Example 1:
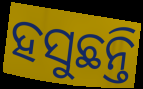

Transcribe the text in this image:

ହସୁଛନ୍ତି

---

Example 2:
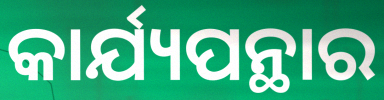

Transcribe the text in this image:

କାର୍ଯ୍ୟପନ୍ଥାର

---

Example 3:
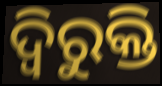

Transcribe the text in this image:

ଦ୍ୱିରୁକ୍ତି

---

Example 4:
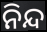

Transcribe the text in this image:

ନିନ୍ଦ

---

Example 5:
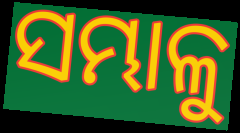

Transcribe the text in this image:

ସମ୍ଭାଳୁ